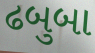
ઢબુબા